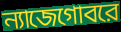
ন্যাজেগোবরে